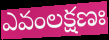
ఎవంలక్షణః